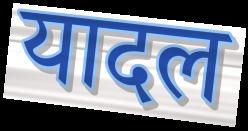
यादल